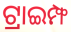
ଟ୍ରାଇମ୍ଫ